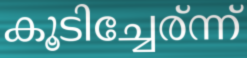
കൂടിച്ചേര്ന്ന്